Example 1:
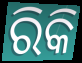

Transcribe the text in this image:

ରିକି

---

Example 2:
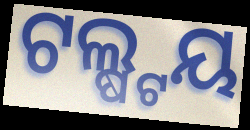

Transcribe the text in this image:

ଟଲ୍ଷ୍ଟୟ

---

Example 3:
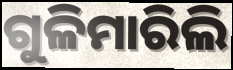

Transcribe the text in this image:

ଗୁଳିମାରିଲି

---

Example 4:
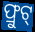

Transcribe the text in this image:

ଫ୍ରୁଟ୍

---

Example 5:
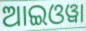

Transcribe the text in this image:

ଆଇଓୱା